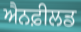
ਐਨਫ਼ੀਲਡ